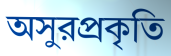
অসুরপ্রকৃতি